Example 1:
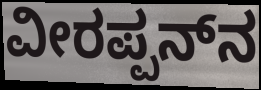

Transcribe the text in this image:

ವೀರಪ್ಪನ್‍ನ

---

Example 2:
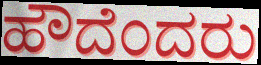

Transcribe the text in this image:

ಹೌದೆಂದರು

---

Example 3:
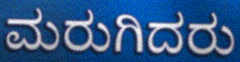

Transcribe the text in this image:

ಮರುಗಿದರು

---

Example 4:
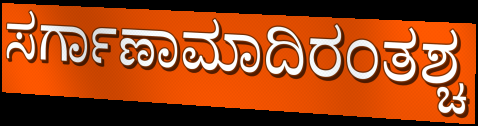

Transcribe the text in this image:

ಸರ್ಗಾಣಾಮಾದಿರಂತಶ್ಚ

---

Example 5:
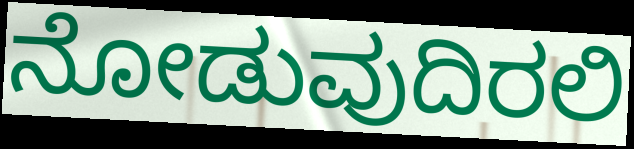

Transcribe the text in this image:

ನೋಡುವುದಿರಲಿ